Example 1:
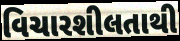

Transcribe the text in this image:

વિચારશીલતાથી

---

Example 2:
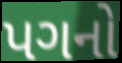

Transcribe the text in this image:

પગનો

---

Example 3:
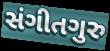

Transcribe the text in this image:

સંગીતગુરુ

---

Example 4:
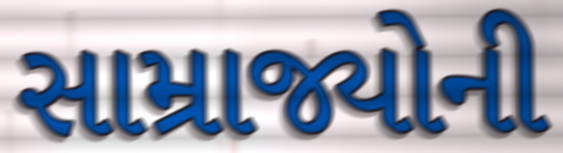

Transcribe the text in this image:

સામ્રાજ્યોની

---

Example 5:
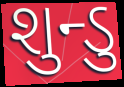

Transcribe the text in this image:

શુન્ડુ